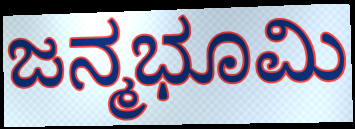
ಜನ್ಮಭೂಮಿ